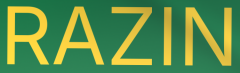
RAZIN